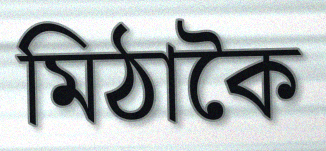
মিঠাকৈ